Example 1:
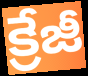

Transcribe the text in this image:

క్రేజీ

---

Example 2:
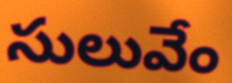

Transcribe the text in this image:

సులువేం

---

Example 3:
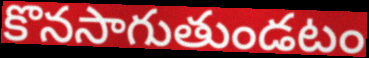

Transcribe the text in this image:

కొనసాగుతుండటం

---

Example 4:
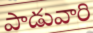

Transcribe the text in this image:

పాడువారి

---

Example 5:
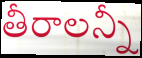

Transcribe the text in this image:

తీరాలన్నీ